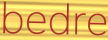
bedre